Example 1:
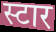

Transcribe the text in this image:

स्‍टार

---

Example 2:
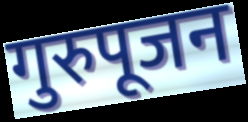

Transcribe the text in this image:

गुरुपूजन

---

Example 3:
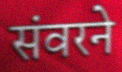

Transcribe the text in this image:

संवरने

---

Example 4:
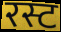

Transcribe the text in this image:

रस्ट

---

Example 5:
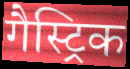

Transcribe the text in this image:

गैस्ट्रिक